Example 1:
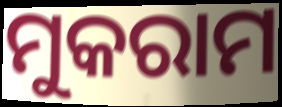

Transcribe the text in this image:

ମୁକରାମ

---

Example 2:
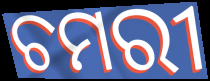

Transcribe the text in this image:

ଚମରୀ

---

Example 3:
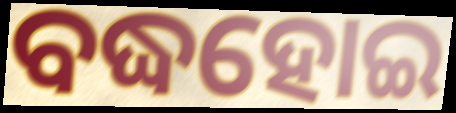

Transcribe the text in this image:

ବଦ୍ଧହୋଇ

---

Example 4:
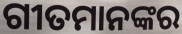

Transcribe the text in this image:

ଗୀତମାନଙ୍କର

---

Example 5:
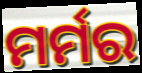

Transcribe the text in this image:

ମର୍ମର